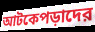
আটকেপড়াদের